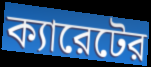
ক্যারেটের